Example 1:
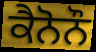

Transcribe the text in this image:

ਕੈਨੋਨੌ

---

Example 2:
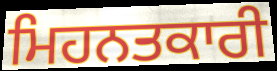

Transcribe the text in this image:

ਮਿਹਨਤਕਾਰੀ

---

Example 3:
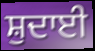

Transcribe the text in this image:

ਸ਼ੁਦਾਈ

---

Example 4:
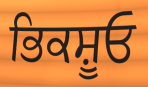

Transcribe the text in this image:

ਭਿਕਸ਼ੂਓ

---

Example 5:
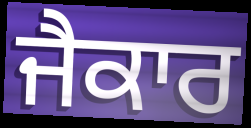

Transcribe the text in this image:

ਜੈਕਾਰ